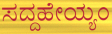
ಸದ್ದಹೇಯ್ಯಂ